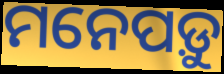
ମନେପଡ଼ୁ